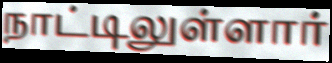
நாட்டிலுள்ளார்